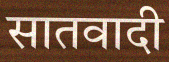
सातवादी